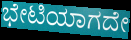
ಭೇಟಿಯಾಗದೇ